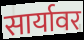
सार्यावर